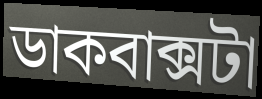
ডাকবাক্সটা